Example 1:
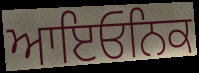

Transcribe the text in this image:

ਆਇਓਨਿਕ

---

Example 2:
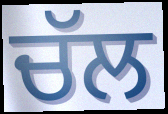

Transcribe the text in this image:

ਚੱਲ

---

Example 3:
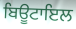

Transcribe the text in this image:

ਬਿਊਟਾਇਲ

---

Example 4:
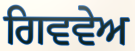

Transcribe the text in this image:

ਗਿਵਵੇਅ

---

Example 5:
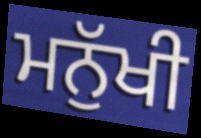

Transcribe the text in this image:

ਮਨੁੱਖੀ